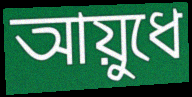
আয়ুধে